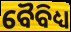
ବୈବିଧ୍ୟ